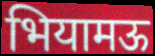
भियामऊ